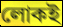
লোকই